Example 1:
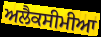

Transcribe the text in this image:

ਅਲੈਕਸੀਮੀਆ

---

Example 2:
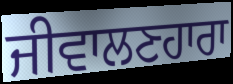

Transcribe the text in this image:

ਜੀਵਾਲਣਹਾਰਾ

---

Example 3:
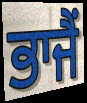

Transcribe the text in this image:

ਭਾਜੈਂ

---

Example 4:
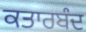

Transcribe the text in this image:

ਕਤਾਰਬੰਦ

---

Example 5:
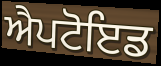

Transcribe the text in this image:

ਐਪਟੋਇਡ